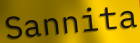
Sannita